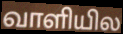
வாளியில